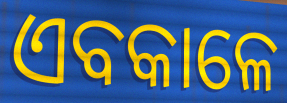
ଏବକାଳେ